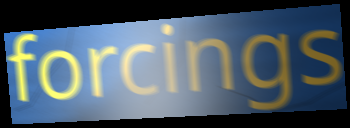
forcings